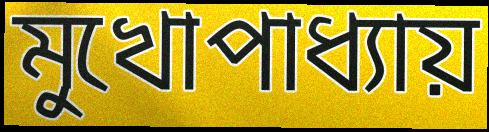
মুখোপাধ্যায়